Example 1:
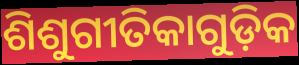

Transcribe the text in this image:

ଶିଶୁଗୀତିକାଗୁଡ଼ିକ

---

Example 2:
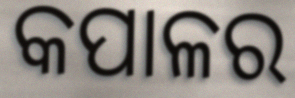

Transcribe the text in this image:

କପାଳର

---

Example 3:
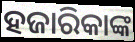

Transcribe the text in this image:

ହଜାରିକାଙ୍କ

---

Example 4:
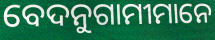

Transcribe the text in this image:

ବେଦନୁଗାମୀମାନେ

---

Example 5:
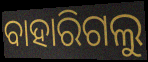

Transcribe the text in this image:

ବାହାରିଗଲୁ